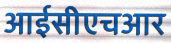
आईसीएचआर